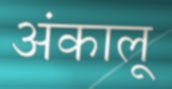
अंकालू